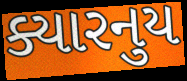
ક્યારનુય